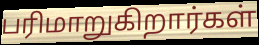
பரிமாறுகிறார்கள்